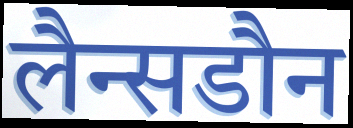
लैन्सडौन